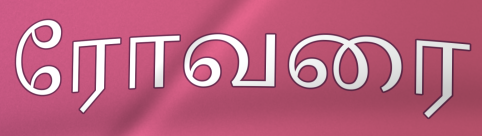
ரோவரை